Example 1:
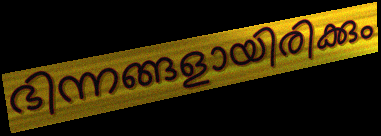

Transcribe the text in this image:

ഭിന്നങ്ങളായിരിക്കും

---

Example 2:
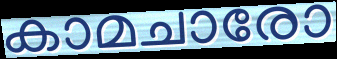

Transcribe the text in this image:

കാമചാരോ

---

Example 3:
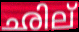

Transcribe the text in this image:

ഛില്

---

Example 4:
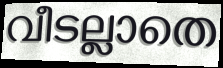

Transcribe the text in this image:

വീടല്ലാതെ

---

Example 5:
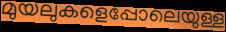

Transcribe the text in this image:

മുയലുകളെപ്പോലെയുള്ള